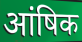
आंषिक